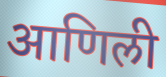
आणिली